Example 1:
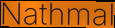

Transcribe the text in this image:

Nathmal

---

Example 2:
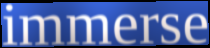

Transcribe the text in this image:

immerse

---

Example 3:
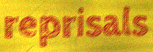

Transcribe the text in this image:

reprisals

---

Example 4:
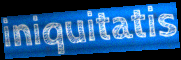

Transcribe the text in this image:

iniquitatis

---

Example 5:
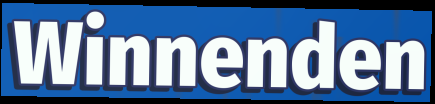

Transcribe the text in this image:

Winnenden